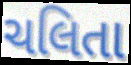
ચલિતા